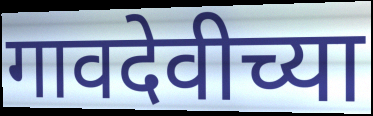
गावदेवीच्या